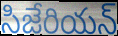
సిజేరియన్